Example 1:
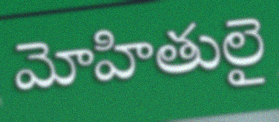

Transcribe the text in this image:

మోహితులై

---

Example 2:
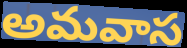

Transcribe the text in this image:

అమవాస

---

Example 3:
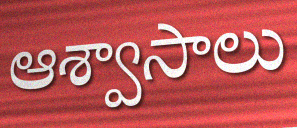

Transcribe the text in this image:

ఆశ్వాసాలు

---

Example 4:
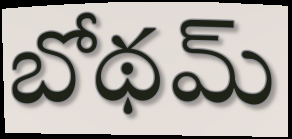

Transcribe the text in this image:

బోథమ్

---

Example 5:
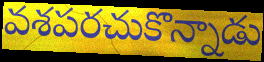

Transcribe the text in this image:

వశపరచుకొన్నాడు